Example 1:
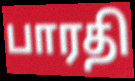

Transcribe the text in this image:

பாரதி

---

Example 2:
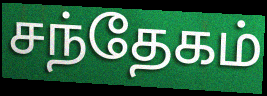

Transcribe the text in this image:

சந்தேகம்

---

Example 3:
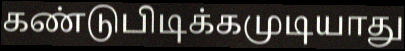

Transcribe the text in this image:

கண்டுபிடிக்கமுடியாது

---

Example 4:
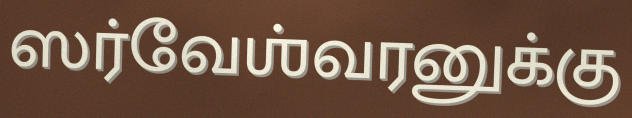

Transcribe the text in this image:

ஸர்வேஶ்வரனுக்கு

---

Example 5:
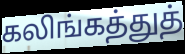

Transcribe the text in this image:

கலிங்கத்துத்